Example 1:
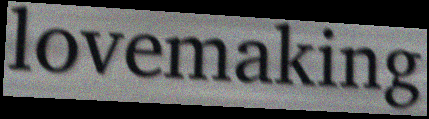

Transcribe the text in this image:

lovemaking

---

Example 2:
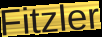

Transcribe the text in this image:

Fitzler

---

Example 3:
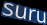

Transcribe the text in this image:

suru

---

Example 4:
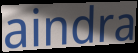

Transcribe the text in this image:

aindra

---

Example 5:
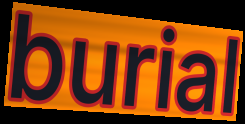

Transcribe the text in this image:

burial